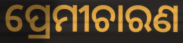
ପ୍ରେମୀଚାରଣ